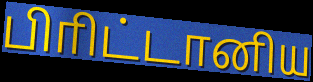
பிரிட்டானிய